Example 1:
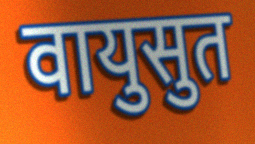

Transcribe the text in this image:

वायुसुत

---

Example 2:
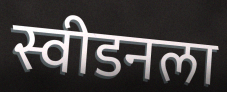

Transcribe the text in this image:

स्वीडनला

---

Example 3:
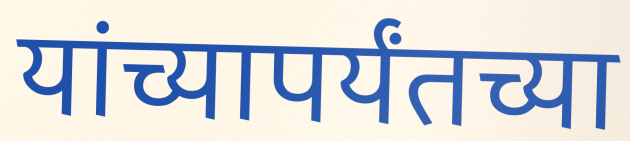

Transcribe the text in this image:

यांच्यापर्यंतच्या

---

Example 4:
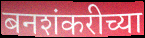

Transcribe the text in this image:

बनशंकरीच्या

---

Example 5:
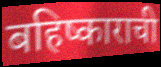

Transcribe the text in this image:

बहिष्काराची